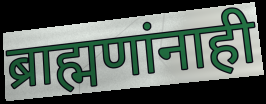
ब्राह्मणांनाही